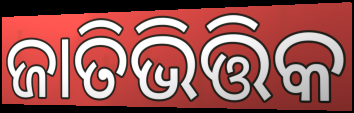
ଜାତିଭିତ୍ତିକ